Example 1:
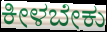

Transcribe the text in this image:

ಕೀಳಬೇಕು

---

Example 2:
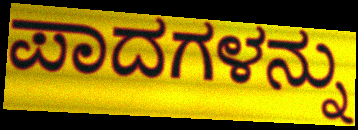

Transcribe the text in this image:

ಪಾದಗಳನ್ನು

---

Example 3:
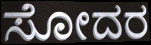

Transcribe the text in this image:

ಸೋದರ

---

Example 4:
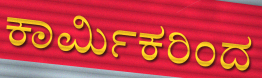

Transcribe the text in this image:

ಕಾರ್ಮಿಕರಿಂದ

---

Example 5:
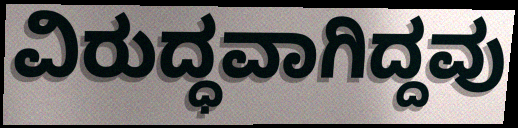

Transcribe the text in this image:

ವಿರುದ್ಧವಾಗಿದ್ದವು